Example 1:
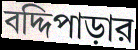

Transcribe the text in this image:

বদ্দিপাড়ার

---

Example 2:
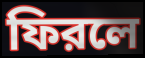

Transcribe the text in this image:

ফিরলে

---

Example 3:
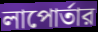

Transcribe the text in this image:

লাপোর্তার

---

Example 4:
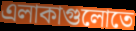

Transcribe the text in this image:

এলাকাগুলোতে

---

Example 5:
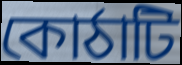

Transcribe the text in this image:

কোঠাটি